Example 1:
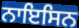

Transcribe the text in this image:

ਨਾਇਸਿਨ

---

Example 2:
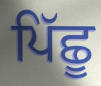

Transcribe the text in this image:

ਪਿੱਛੂ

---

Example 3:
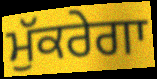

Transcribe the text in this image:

ਮੁੱਕਰੇਗਾ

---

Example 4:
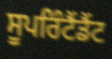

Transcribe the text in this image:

ਸੂਪਰਿੰਟੈਂਡੈਂਟ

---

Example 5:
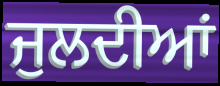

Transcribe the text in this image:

ਜੁਲਦੀਆਂ